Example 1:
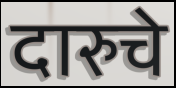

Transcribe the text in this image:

दारुचे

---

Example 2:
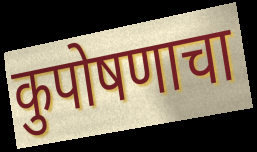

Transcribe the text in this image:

कुपोषणाचा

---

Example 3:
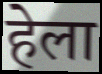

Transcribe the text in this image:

हेला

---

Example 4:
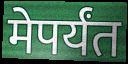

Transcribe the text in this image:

मेपर्यंत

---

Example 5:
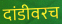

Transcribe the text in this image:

दांडीवरच